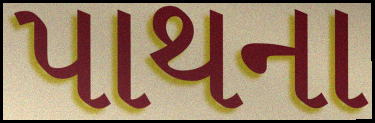
પાથના